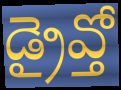
డ్రైవ్తో